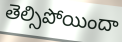
తెల్సిపోయిందా